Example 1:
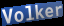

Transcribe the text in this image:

Volker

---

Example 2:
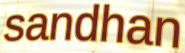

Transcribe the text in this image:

sandhan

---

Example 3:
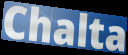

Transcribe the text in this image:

Chalta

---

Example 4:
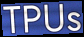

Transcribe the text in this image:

TPUs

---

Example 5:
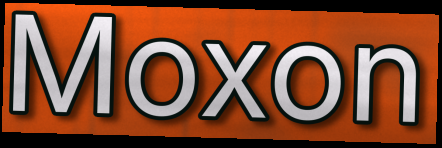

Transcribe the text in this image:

Moxon